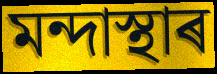
মন্দাস্থাৰ